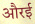
औरई